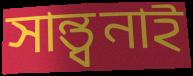
সান্ত্বনাই